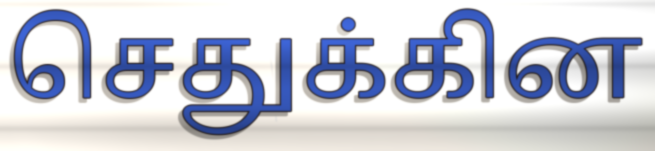
செதுக்கின